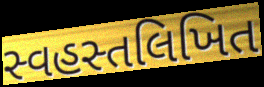
સ્વહસ્તલિખિત